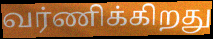
வர்ணிக்கிறது